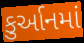
કુર્આનમાં